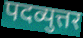
पदव्युत्तर